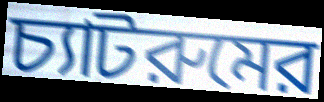
চ্যাটরুমের